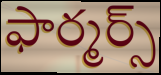
ఫార్మర్స్